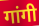
गांगी